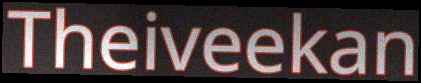
Theiveekan